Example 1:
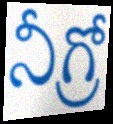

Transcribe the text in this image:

నీగ్రో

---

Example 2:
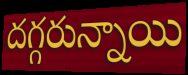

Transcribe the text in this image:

దగ్గరున్నాయి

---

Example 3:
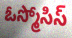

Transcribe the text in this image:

ఓస్మోసిస్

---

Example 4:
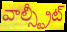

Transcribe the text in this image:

వాల్స్ట్రీట్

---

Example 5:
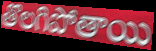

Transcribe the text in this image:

తొలగిపోతాయి